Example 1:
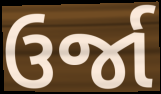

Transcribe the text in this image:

ઉર્જા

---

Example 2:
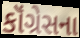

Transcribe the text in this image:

કૉંગ્રેસના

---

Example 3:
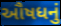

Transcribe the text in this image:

ઔષધનું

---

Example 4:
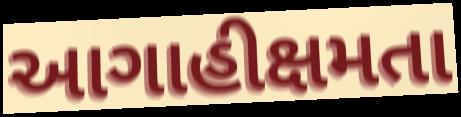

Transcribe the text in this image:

આગાહીક્ષમતા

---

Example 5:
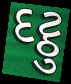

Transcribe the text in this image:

દટ્ઠુ